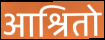
आश्रितो